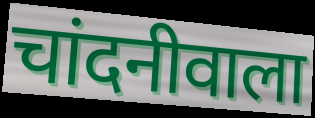
चांदनीवाला